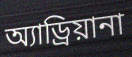
অ্যাড্রিয়ানা